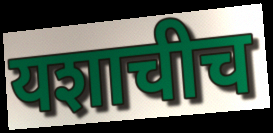
यशाचीच